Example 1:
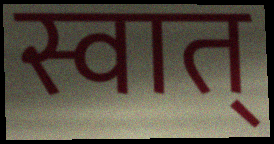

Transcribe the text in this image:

स्वात्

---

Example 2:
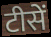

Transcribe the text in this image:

टीसें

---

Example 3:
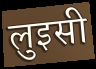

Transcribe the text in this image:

लुइसी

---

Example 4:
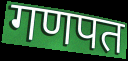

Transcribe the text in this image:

गणपत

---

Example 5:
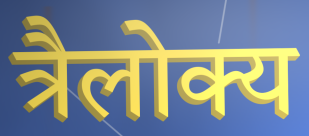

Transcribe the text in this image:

त्रैलोक्य